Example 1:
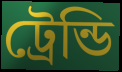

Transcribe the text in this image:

ট্রেন্ডি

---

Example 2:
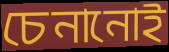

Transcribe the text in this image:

চেনানোই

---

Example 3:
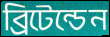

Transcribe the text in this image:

ব্রিটেন্ডেন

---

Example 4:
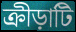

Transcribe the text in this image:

ক্রীড়াটি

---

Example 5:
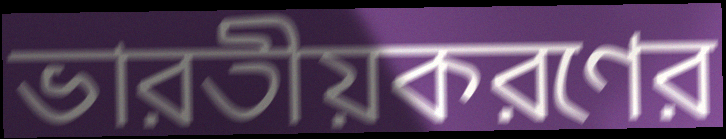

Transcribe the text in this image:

ভারতীয়করণের